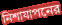
নিশাযাপনের